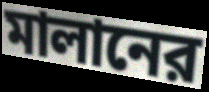
মালানের